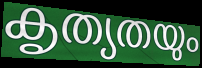
കൃത്യതയും